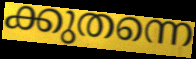
ക്കുതന്നെ